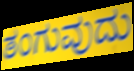
ತಂಗುವುದು